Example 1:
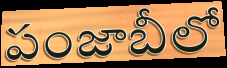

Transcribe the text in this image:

పంజాబీలో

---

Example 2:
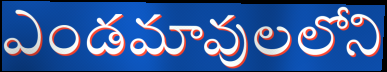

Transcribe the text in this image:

ఎండమావులలోని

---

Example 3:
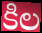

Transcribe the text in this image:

కిల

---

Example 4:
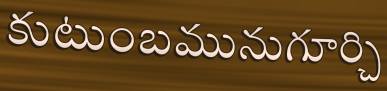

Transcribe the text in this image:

కుటుంబమునుగూర్చి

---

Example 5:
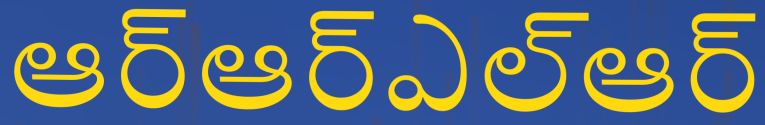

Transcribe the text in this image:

ఆర్ఆర్ఎల్ఆర్